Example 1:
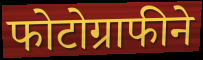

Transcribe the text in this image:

फोटोग्राफीने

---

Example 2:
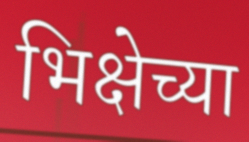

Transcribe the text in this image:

भिक्षेच्या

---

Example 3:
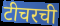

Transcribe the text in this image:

टीचरची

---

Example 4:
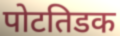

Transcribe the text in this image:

पोटतिडक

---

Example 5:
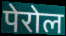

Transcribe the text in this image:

पेरोल